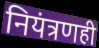
नियंत्रणही